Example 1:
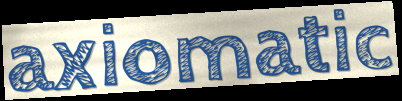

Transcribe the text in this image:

axiomatic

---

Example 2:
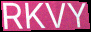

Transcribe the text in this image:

RKVY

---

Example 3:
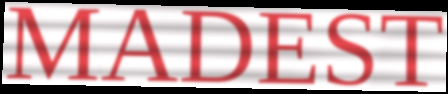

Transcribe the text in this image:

MADEST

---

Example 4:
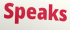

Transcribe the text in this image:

Speaks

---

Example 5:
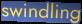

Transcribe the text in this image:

swindling